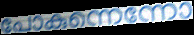
പോകുന്നെന്നോ